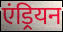
एंड्रियन